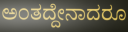
ಅಂತದ್ದೇನಾದರೂ